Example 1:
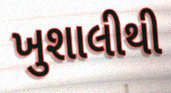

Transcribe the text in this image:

ખુશાલીથી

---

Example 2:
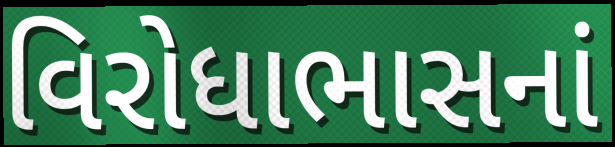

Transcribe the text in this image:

વિરોધાભાસનાં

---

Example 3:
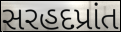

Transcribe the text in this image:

સરહદપ્રાંત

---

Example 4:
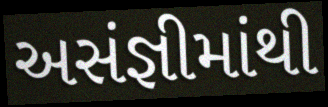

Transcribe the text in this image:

અસંજ્ઞીમાંથી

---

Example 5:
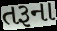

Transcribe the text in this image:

તરૂના